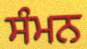
ਸੰਮਨ